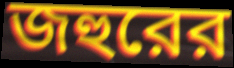
জহুরের